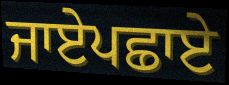
ਜਾਏਪਛਾਏ